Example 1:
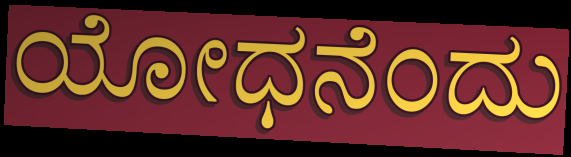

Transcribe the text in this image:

ಯೋಧನೆಂದು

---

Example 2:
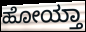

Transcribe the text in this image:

ಹೋಯ್ತಾ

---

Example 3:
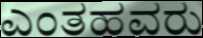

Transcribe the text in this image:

ಎಂತಹವರು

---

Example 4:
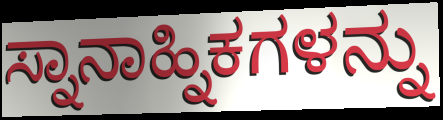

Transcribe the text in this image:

ಸ್ನಾನಾಹ್ನಿಕಗಳನ್ನು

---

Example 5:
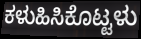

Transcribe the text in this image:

ಕಳುಹಿಸಿಕೊಟ್ಟಳು